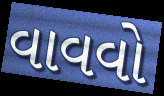
વાવવો